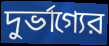
দুর্ভাগ্যের